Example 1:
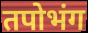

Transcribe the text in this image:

तपोभंग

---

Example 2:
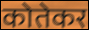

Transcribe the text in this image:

कोतेकर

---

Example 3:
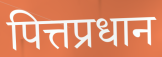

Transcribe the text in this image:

पित्तप्रधान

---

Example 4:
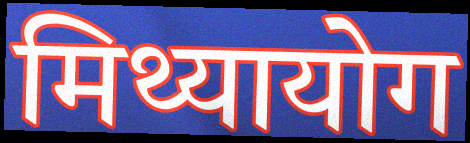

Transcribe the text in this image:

मिथ्यायोग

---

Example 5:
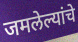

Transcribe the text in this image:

जमलेल्यांचे